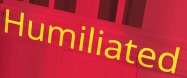
Humiliated